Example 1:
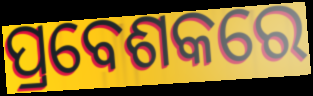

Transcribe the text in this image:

ପ୍ରବେଶକରେ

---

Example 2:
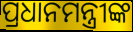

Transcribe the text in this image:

ପ୍ରଧାନମନ୍ତ୍ରୀଙ୍କ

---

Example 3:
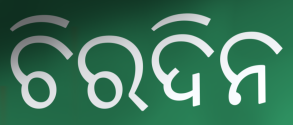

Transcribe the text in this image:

ଚିରଦିନ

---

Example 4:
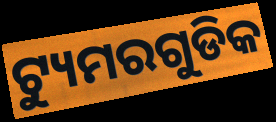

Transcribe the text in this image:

ଟ୍ୟୁମରଗୁଡିକ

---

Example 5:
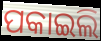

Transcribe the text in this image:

ପକାଇଲି